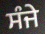
ਸੰਜੇ